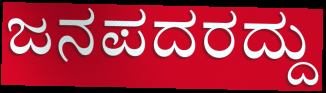
ಜನಪದರದ್ದು